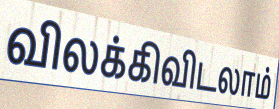
விலக்கிவிடலாம்